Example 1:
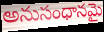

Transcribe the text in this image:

అనుసంధానమై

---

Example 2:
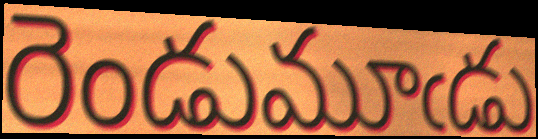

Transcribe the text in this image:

రెండుమూఁడు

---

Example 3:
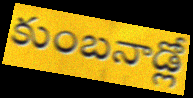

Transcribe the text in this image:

కుంబనాడ్లో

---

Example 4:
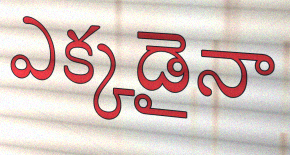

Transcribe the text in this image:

ఎక్కడైనా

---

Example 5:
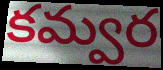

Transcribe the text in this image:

కమ్వర